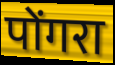
पोंगरा